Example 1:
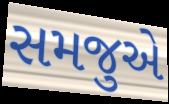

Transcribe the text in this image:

સમજુએ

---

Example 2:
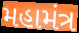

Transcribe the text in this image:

મહામંત્ર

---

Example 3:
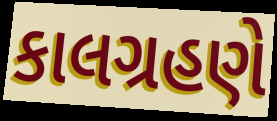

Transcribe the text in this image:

કાલગ્રહણે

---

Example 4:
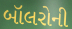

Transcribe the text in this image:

બૉલરોની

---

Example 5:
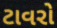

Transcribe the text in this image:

ટાવરો